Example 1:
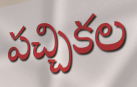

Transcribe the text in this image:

పచ్చికల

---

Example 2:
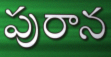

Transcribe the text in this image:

పురాన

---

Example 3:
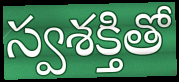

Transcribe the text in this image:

స్వశక్తితో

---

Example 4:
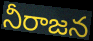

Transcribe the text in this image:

నీరాజన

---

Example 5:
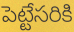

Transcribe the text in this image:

పెట్టేసరికి